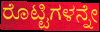
ರೊಟ್ಟಿಗಳನ್ನೇ